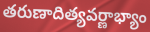
తరుణాదిత్యవర్ణాభ్యాం